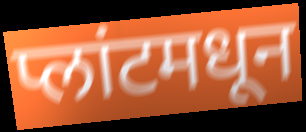
प्लांटमधून